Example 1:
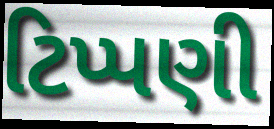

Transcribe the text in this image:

ટિપ્પણી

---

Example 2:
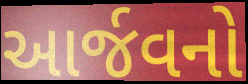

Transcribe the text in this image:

આર્જવનો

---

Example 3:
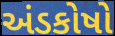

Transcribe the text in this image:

અંડકોષો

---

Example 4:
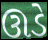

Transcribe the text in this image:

ઊડે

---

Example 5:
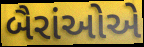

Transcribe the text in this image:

બૈરાંઓએ